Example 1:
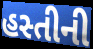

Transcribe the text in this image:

હસ્તીની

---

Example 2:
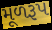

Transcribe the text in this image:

મૂળરૂપ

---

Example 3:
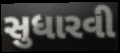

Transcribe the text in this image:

સુધારવી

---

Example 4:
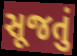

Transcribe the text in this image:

સૂજતું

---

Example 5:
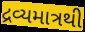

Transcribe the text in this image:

દ્રવ્યમાત્રથી